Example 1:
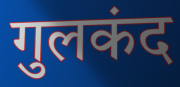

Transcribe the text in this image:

गुलकंद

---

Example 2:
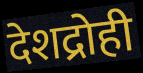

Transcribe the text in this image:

देशद्रोही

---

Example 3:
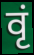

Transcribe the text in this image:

वृं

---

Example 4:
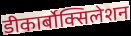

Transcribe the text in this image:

डीकार्बोक्सिलेशन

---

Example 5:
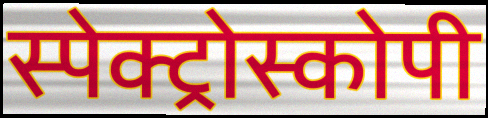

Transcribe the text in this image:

स्पेक्ट्रोस्कोपी